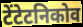
टेंटेटनिकोव